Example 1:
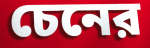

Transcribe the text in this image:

চেনের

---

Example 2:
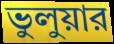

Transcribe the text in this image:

ভুলুয়ার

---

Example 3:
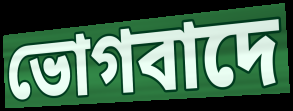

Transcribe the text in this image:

ভোগবাদে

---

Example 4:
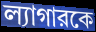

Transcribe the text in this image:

ল্যাগারকে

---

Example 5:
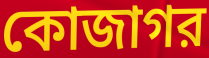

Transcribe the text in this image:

কোজাগর